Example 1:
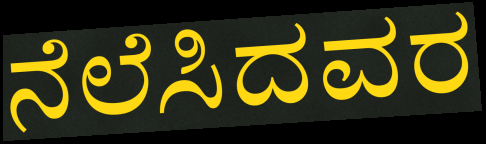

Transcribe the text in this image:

ನೆಲೆಸಿದವರ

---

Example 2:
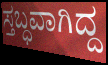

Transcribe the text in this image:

ಸ್ತಬ್ಧವಾಗಿದ್ದ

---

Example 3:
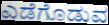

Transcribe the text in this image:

ಎಡೆಗೊಡುವ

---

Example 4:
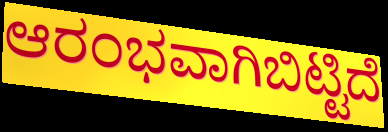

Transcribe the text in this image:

ಆರಂಭವಾಗಿಬಿಟ್ಟಿದೆ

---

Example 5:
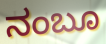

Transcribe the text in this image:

ನಂಬೂ